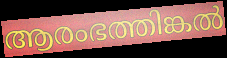
ആരംഭത്തിങ്കൽ